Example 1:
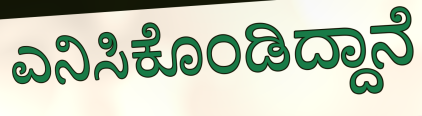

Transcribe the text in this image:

ಎನಿಸಿಕೊಂಡಿದ್ದಾನೆ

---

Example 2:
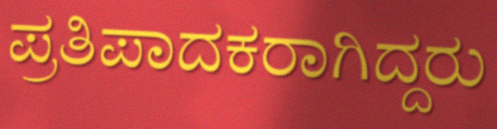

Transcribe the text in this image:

ಪ್ರತಿಪಾದಕರಾಗಿದ್ದರು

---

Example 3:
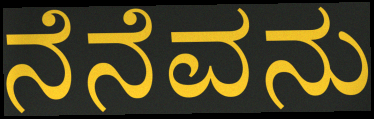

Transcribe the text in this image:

ನೆನೆವನು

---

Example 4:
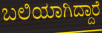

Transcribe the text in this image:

ಬಲಿಯಾಗಿದ್ದಾರೆ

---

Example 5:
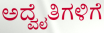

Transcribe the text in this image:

ಅದ್ವೈತಿಗಳಿಗೆ